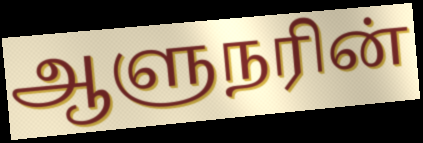
ஆளுநரின்